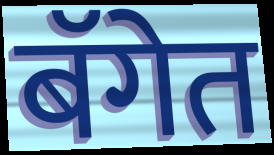
बॅगेत